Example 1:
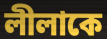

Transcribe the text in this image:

লীলাকে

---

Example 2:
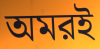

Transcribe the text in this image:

অমরই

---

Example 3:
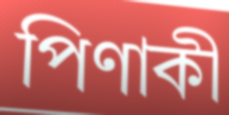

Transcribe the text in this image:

পিণাকী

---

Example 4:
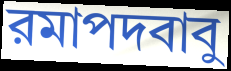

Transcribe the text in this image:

রমাপদবাবু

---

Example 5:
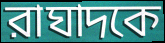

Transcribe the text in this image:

রাঘাদকে